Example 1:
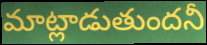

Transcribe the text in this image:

మాట్లాడుతుందనీ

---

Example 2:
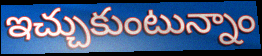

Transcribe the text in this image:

ఇచ్చుకుంటున్నాం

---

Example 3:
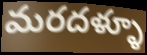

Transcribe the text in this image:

మరదళ్ళూ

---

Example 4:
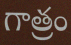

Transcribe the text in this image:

గాత్రం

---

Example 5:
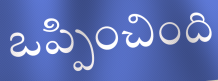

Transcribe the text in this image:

ఒప్పించింది